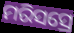
ମରିସସ୍ରେ